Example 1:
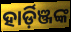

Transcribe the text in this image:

ହାର୍ଡ଼ିଞ୍ଜଙ୍କ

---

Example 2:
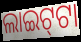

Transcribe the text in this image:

ଲାଇଟ୍‍ଟା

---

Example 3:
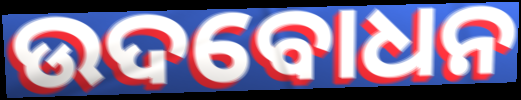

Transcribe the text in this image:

ଉଦବୋଧନ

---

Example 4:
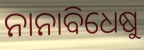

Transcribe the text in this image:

ନାନାବିଧେଷୁ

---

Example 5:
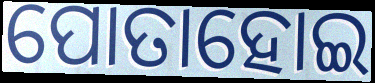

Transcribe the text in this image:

ପୋତାହୋଇ